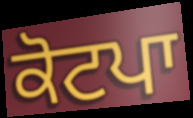
ਕੋਟਪਾ